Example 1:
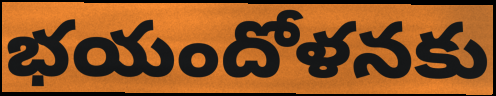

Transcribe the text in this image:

భయందోళనకు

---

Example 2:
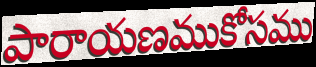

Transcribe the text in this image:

పారాయణముకోసము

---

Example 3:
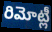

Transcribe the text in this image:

రిమోట్లీ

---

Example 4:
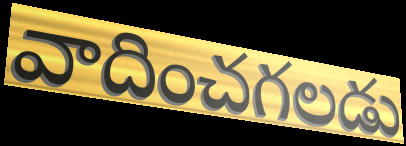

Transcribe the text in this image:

వాదించగలడు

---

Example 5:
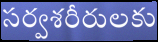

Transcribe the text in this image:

సర్వశరీరులకు